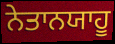
ਨੇਤਾਨਯਾਹੂ